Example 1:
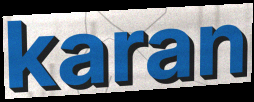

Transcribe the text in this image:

karan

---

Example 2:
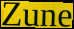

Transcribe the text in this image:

Zune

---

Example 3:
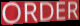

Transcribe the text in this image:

ORDER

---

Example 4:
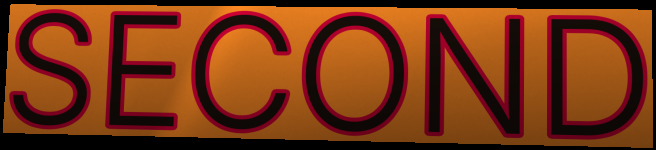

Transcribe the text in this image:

SECOND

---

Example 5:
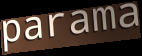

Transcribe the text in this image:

parama